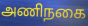
அணிநகை